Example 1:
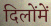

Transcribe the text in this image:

दिलोंमें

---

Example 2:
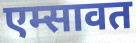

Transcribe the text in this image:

एम्सावत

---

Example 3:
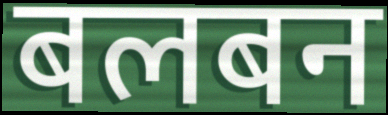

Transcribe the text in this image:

बलबन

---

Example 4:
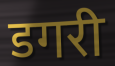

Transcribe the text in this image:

डगरी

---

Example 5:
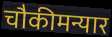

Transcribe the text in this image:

चौकीमन्यार